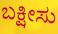
ಬಕ್ಷೀಸು